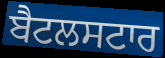
ਬੈਟਲਸਟਾਰ